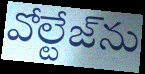
వోల్టేజ్‌ను